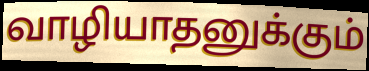
வாழியாதனுக்கும்